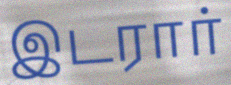
இடரார்